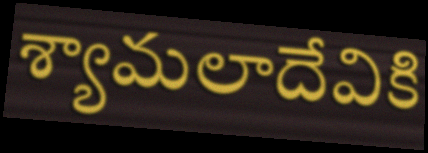
శ్యామలాదేవికి